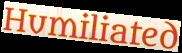
Humiliated